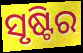
ସୃଷ୍ଟିର